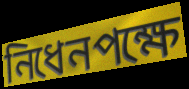
নিধেনপক্ষে